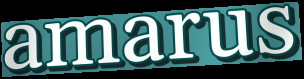
amarus